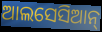
ଆଲସେସିଆନ୍